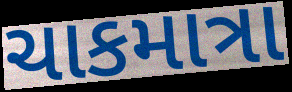
ચાકમાત્રા